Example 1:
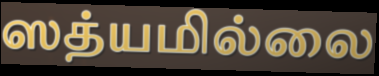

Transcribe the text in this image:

ஸத்யமில்லை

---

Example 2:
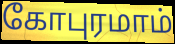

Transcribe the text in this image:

கோபுரமாம்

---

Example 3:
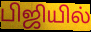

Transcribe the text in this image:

பிஜியில்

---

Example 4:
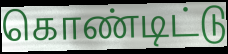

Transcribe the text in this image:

கொண்டிட்டு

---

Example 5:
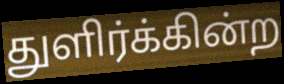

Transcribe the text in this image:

துளிர்க்கின்ற